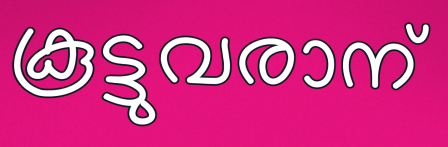
കൂട്ടുവരാന്